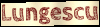
Lungescu